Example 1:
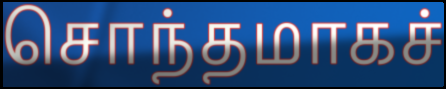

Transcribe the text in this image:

சொந்தமாகச்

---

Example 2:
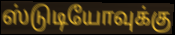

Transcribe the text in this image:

ஸ்டுடியோவுக்கு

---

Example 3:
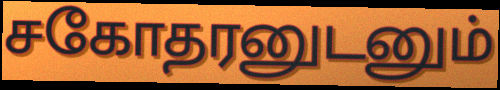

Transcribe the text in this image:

சகோதரனுடனும்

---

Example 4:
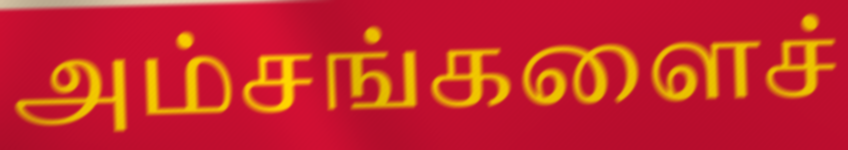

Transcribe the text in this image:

அம்சங்களைச்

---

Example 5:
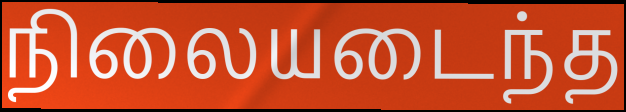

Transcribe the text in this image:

நிலையடைந்த